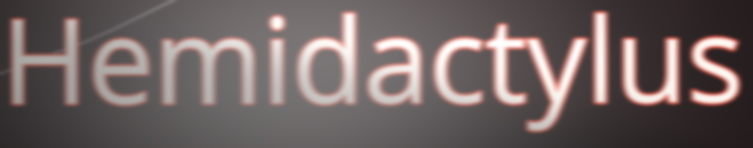
Hemidactylus